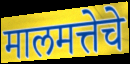
मालमत्तेचे